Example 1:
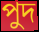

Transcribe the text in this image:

পুদ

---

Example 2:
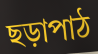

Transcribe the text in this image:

ছড়াপাঠ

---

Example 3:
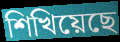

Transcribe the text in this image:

শিখিয়েছে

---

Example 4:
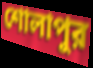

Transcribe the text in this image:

শোলাপুর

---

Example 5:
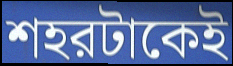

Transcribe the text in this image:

শহরটাকেই